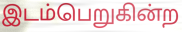
இடம்பெறுகின்ற